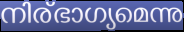
നിര്ഭാഗ്യമെന്നു